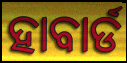
ହାବାର୍ଡ